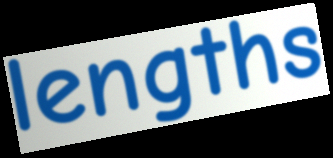
lengths